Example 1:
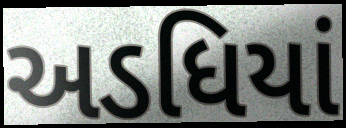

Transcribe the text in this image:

અડધિયાં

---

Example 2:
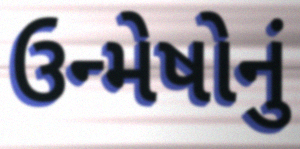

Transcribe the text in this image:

ઉન્મેષોનું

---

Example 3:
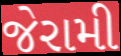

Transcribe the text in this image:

જેરામી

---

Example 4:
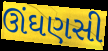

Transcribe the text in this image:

ઊંઘણસી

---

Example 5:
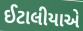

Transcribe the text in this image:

ઈટાલીયાએ